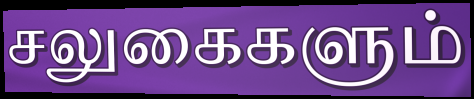
சலுகைகளும்